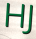
HJ